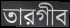
তারগীব